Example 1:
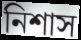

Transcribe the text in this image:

নিশাস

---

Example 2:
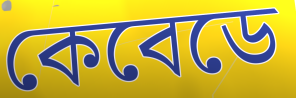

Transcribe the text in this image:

কেবেডে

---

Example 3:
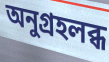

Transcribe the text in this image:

অনুগ্রহলব্ধ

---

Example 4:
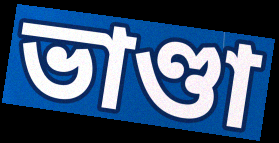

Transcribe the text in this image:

ভাণ্ডা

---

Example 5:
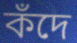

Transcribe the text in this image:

কঁদে